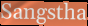
Sangstha